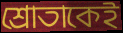
শ্রোতাকেই